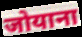
जोयाना